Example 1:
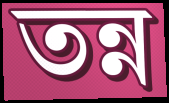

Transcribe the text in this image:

তন্ন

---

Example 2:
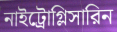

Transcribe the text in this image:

নাইট্রোগ্লিসারিন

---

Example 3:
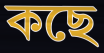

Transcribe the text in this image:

কছে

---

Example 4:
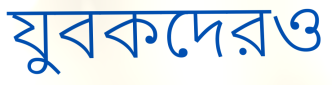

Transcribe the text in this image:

যুবকদেরও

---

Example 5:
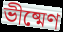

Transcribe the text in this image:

ভীষ্মেণ